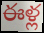
ఈళ్ల